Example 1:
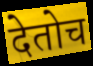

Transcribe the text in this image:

देतोच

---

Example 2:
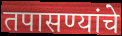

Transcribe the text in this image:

तपासण्यांचे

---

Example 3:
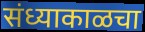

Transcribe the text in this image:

संध्याकाळचा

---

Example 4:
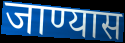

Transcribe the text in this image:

जाण्यास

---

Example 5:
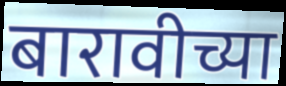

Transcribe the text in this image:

बारावीच्या